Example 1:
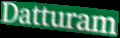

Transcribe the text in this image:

Datturam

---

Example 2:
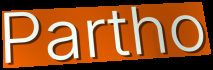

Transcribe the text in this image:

Partho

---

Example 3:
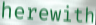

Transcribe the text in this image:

herewith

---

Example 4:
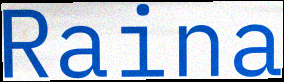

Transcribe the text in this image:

Raina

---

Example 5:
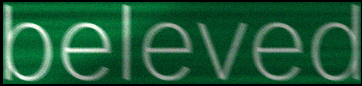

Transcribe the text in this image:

beleved